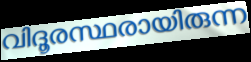
വിദൂരസ്ഥരായിരുന്ന